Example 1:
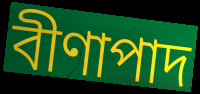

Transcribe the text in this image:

বীণাপাদ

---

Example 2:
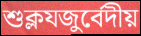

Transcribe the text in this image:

শুক্লযজুর্বেদীয়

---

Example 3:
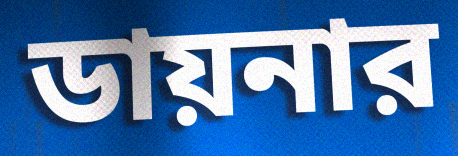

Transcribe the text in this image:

ডায়নার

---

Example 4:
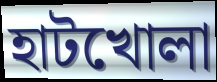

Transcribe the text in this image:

হাটখোলা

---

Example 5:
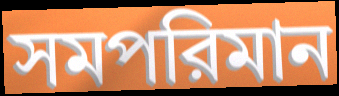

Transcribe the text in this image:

সমপরিমান